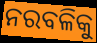
ନରବଳିକୁ